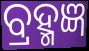
ବ୍ରହ୍ମଜ୍ଞ